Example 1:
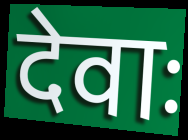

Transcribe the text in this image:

देवाः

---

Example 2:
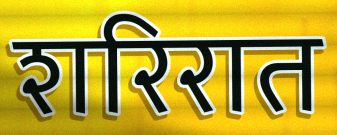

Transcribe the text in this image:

शरिरात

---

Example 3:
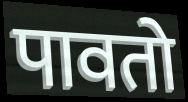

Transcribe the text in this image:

पावतो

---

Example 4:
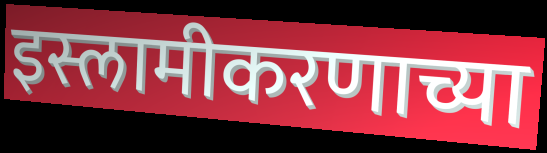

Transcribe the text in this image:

इस्लामीकरणाच्या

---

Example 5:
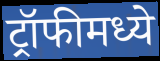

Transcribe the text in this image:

ट्रॉफीमध्ये